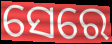
ସେରେ